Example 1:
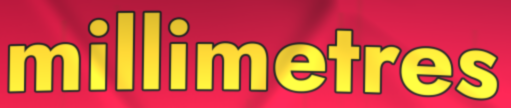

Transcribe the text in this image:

millimetres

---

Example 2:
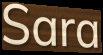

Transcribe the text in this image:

Sara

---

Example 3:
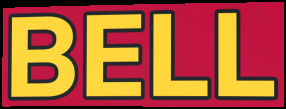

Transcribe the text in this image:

BELL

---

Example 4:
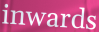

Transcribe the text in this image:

inwards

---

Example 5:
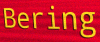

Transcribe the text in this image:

Bering